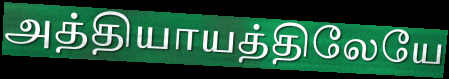
அத்தியாயத்திலேயே